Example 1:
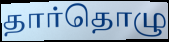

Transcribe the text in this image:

தார்தொழு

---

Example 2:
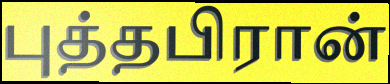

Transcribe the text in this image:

புத்தபிரான்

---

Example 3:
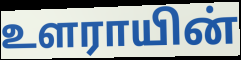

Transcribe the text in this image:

உளராயின்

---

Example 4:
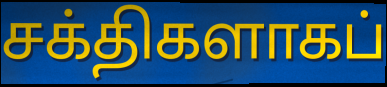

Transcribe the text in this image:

சக்திகளாகப்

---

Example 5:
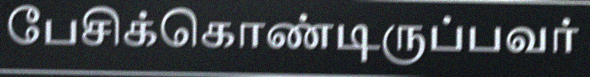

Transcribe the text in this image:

பேசிக்கொண்டிருப்பவர்